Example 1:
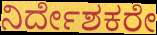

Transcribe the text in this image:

ನಿರ್ದೇಶಕರೇ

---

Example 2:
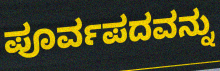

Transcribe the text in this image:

ಪೂರ್ವಪದವನ್ನು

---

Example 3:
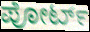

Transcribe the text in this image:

ಪೋರ್ಟ್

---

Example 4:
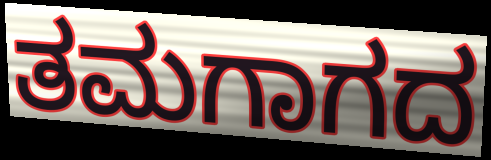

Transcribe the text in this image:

ತಮಗಾಗದ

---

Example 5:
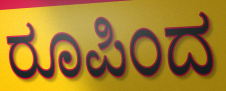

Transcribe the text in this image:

ರೂಪಿಂದ